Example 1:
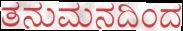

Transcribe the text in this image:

ತನುಮನದಿಂದ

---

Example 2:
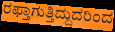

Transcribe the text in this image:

ರಫ್ತಾಗುತ್ತಿದ್ದುದರಿಂದ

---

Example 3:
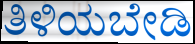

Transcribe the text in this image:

ತಿಳಿಯಬೇಡಿ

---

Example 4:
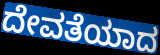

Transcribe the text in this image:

ದೇವತೆಯಾದ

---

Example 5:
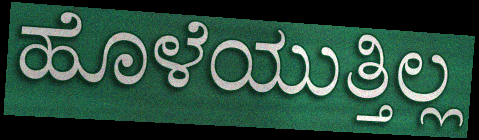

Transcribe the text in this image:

ಹೊಳೆಯುತ್ತಿಲ್ಲ